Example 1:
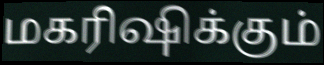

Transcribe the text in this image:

மகரிஷிக்கும்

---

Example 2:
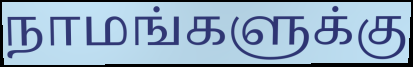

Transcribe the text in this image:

நாமங்களுக்கு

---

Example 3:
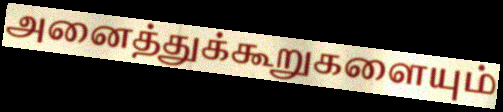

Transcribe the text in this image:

அனைத்துக்கூறுகளையும்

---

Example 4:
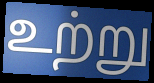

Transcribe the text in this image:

உற்று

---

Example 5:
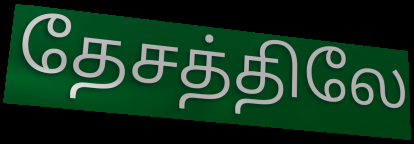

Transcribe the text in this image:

தேசத்திலே